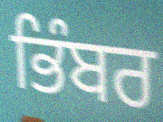
ਭਿੰਬਰ